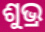
ଶୁଭ୍ର